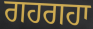
ਗਹਗਹਾ